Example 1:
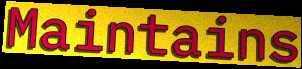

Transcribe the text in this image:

Maintains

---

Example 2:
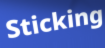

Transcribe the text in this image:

Sticking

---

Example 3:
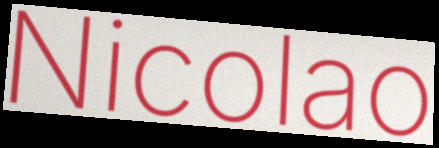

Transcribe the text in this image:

Nicolao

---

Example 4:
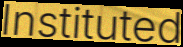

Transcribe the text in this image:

Instituted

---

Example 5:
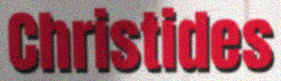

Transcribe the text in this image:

Christides